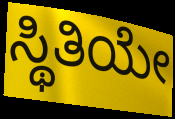
ಸ್ಥಿತಿಯೇ